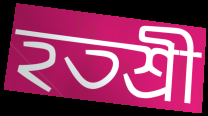
হতশ্রী